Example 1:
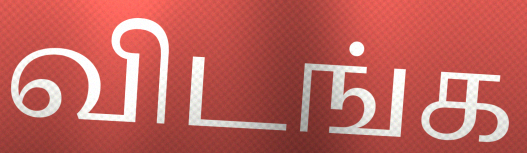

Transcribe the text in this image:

விடங்க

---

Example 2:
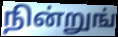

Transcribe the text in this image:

நின்றுங்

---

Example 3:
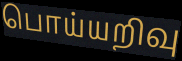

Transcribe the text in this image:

பொய்யறிவு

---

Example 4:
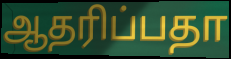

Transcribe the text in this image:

ஆதரிப்பதா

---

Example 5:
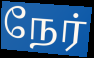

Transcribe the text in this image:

நேர்